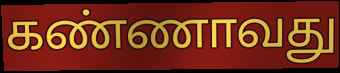
கண்ணாவது